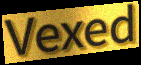
Vexed